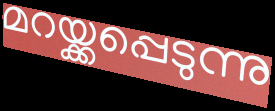
മറയ്ക്കപ്പെടുന്നു